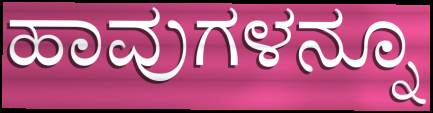
ಹಾವುಗಳನ್ನೂ